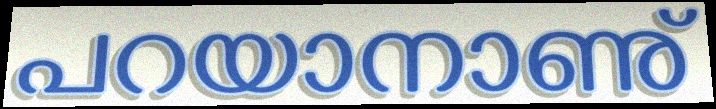
പറയാനാണു്